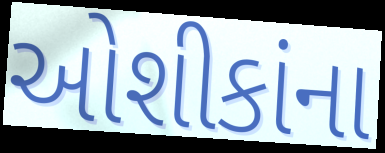
ઓશીકાંના